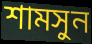
শামসুন